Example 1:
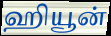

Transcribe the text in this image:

ஹியூன்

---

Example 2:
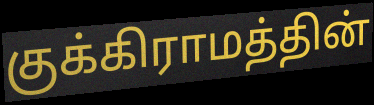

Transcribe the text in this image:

குக்கிராமத்தின்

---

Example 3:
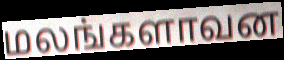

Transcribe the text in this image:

மலங்களாவன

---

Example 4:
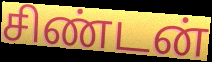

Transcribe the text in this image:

சிண்டன்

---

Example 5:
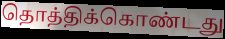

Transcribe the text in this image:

தொத்திக்கொண்டது